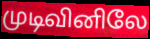
முடிவினிலே